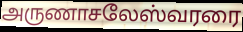
அருணாசலேஸ்வரரை